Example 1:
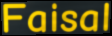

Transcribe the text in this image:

Faisal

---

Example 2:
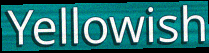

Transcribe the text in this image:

Yellowish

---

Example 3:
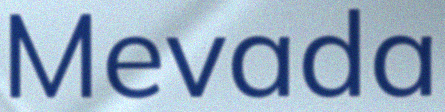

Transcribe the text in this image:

Mevada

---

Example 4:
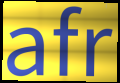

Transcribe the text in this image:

afr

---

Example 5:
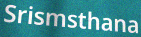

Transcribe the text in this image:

Srismsthana